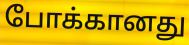
போக்கானது